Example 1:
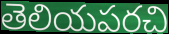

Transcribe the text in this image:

తెలియపరచి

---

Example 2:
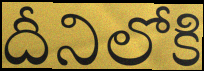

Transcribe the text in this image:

దీనిలోకి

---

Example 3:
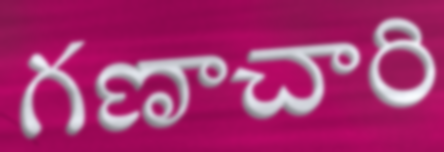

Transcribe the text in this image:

గణాచారి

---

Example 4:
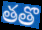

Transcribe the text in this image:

తతొ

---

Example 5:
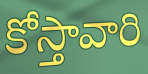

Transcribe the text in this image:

కోస్తావారి